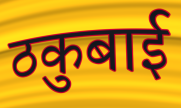
ठकुबाई